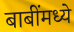
बाबींमध्ये